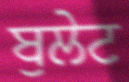
ਬੁਲੇਟ